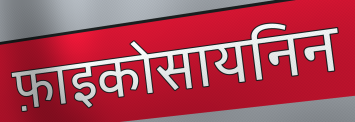
फ़ाइकोसायनिन